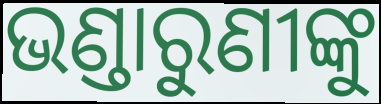
ଭଣ୍ଡାରୁଣୀଙ୍କୁ